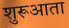
शुरूआता